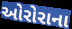
ઓરોરાના